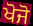
ਖੋਜੋ